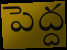
పెద్ద